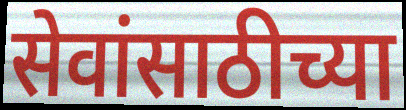
सेवांसाठीच्या